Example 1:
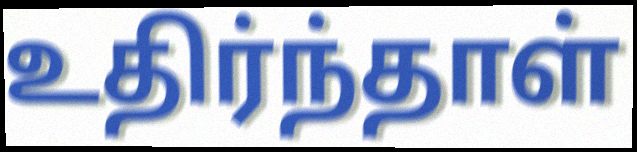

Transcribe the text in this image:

உதிர்ந்தாள்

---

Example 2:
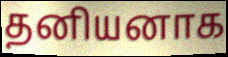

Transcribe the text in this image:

தனியனாக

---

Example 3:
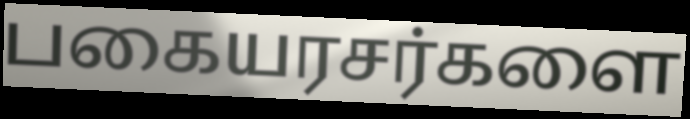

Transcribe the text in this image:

பகையரசர்களை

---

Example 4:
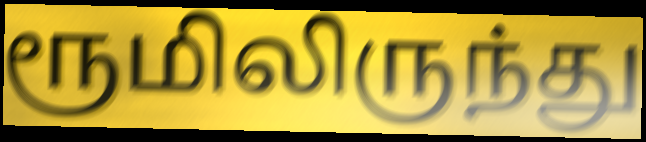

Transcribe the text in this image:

ரூமிலிருந்து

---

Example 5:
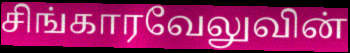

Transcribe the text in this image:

சிங்காரவேலுவின்